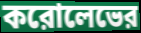
করোলেভের